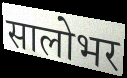
सालोभर